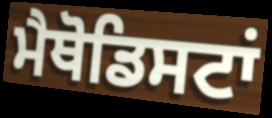
ਮੈਥੋਡਿਸਟਾਂ